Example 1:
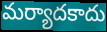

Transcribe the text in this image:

మర్యాదకాదు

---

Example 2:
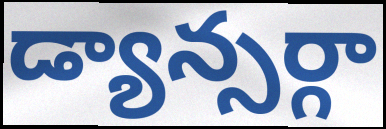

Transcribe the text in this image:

డ్యాన్సర్గా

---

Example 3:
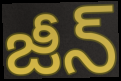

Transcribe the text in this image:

జీన్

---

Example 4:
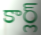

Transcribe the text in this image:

కార్ల్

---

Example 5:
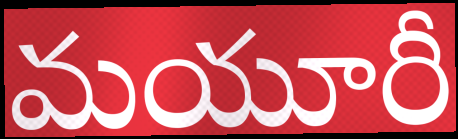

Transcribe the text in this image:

మయూరీ